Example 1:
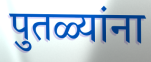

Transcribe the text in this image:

पुतळ्यांना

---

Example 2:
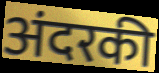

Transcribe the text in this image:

अंदरकी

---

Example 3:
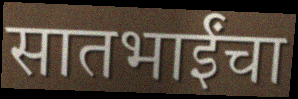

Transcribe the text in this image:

सातभाईंचा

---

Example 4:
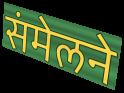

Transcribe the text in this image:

संमेलने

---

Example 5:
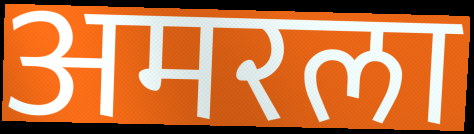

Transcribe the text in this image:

अमरला